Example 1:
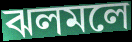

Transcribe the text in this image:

ঝলমলে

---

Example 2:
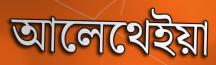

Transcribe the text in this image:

আলেথেইয়া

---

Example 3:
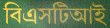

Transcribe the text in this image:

বিএসটিআই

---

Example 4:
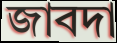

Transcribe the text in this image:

জাবদা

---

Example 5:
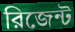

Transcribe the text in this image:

রিজেন্ট